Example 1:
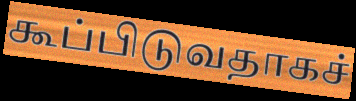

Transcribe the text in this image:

கூப்பிடுவதாகச்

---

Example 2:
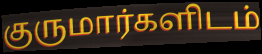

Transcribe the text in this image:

குருமார்களிடம்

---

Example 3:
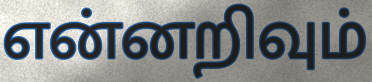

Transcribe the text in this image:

என்னறிவும்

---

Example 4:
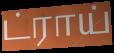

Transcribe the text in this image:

ட்ராய்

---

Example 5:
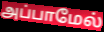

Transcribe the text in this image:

அப்பாமேல்